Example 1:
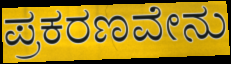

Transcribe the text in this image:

ಪ್ರಕರಣವೇನು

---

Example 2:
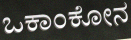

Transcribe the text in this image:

ಒಕಾಂಕೋನ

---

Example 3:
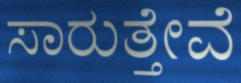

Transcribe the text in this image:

ಸಾರುತ್ತೇವೆ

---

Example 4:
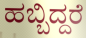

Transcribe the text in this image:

ಹಬ್ಬಿದ್ದರೆ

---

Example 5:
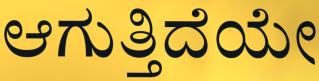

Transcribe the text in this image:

ಆಗುತ್ತಿದೆಯೇ